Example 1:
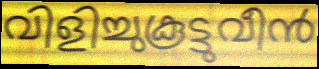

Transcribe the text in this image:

വിളിച്ചുകൂട്ടുവീൻ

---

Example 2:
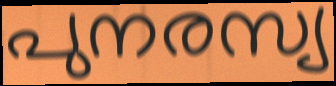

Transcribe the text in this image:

പുനരസ്യ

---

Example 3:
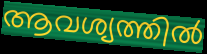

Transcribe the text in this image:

ആവശ്യത്തിൽ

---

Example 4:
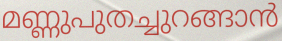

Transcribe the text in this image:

മണ്ണുപുതച്ചുറങ്ങാൻ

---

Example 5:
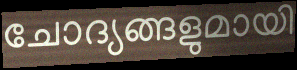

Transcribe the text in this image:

ചോദ്യങ്ങളുമായി